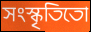
সংস্কৃতিতো